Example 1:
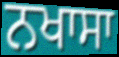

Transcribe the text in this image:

ਨਖਾਸਾ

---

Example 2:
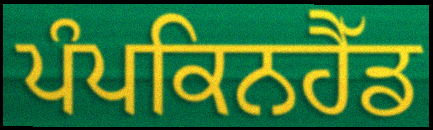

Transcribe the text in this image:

ਪੰਪਕਿਨਹੈੱਡ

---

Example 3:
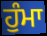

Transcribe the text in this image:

ਹੁੰਮਾ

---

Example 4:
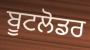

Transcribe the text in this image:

ਬੂਟਲੋਡਰ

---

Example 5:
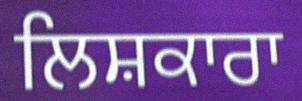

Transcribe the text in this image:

ਲਿਸ਼ਕਾਰਾ